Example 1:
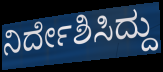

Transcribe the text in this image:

ನಿರ್ದೇಶಿಸಿದ್ದು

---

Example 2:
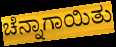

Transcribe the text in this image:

ಚೆನ್ನಾಗಾಯಿತು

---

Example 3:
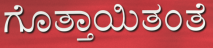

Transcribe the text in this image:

ಗೊತ್ತಾಯಿತಂತೆ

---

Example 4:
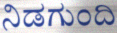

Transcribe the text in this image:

ನಿಡಗುಂದಿ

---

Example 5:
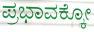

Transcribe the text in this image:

ಪ್ರಭಾವಕ್ಕೋ